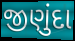
જીણુંદા